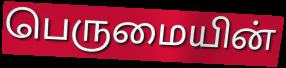
பெருமையின்